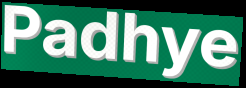
Padhye